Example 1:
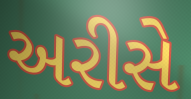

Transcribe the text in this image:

અરીસે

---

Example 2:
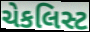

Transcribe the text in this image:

ચેકલિસ્ટ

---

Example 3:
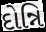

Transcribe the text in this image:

દોન્નિ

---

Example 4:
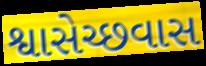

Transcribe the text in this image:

શ્વાસેચ્છવાસ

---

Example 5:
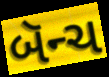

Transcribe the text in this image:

બૅન્ચ